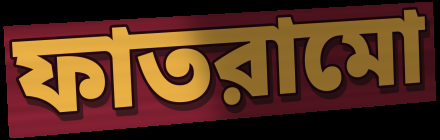
ফাতরামো